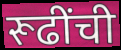
रूढींची